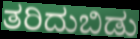
ತರಿದುಬಿಡು